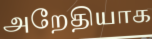
அறேதியாக